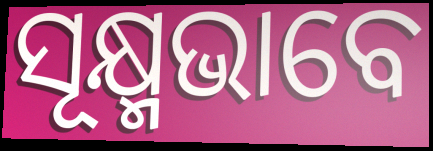
ସୂକ୍ଷ୍ମଭାବେ